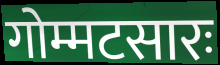
गोम्मटसारः